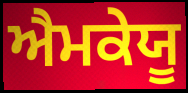
ਐਮਕੇਯੂ